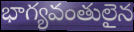
భాగ్యవంతులైన